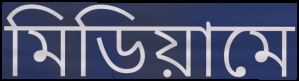
মিডিয়ামে